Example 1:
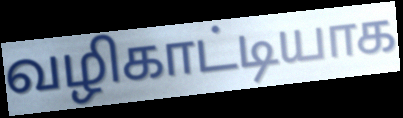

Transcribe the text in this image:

வழிகாட்டியாக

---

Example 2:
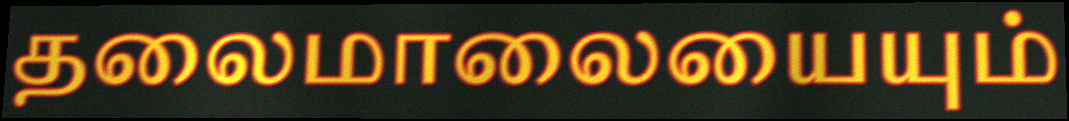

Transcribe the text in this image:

தலைமாலையையும்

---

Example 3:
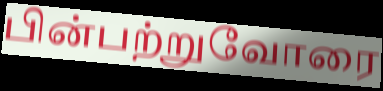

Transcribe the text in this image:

பின்பற்றுவோரை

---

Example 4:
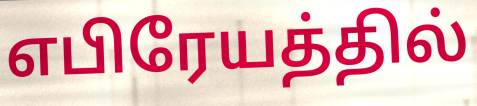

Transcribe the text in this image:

எபிரேயத்தில்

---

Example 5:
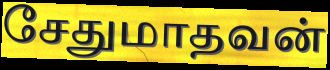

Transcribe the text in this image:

சேதுமாதவன்